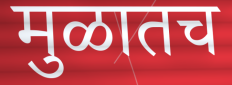
मुळातच